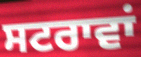
ਸਟਰਾਵਾਂ